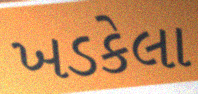
ખડકેલા